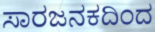
ಸಾರಜನಕದಿಂದ